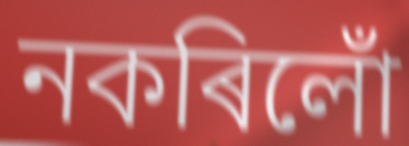
নকৰিলোঁ